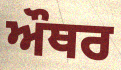
ਔਥਰ